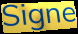
Signe